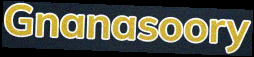
Gnanasoory